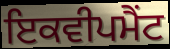
ਇਕਵੀਪਮੈਂਟ